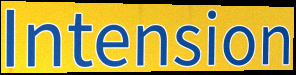
Intension